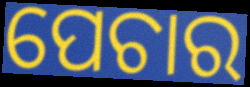
ପେଚାର